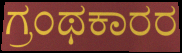
ಗ್ರಂಥಕಾರರ